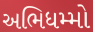
અભિધમ્મો